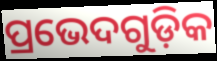
ପ୍ରଭେଦଗୁଡ଼ିକ